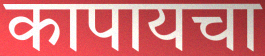
कापायचा